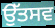
ਉੱਤਸਵ